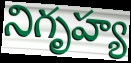
నిగృహ్య